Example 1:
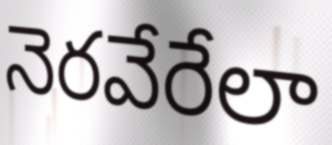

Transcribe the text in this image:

నెరవేరేలా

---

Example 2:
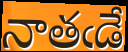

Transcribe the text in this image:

నాతఁడే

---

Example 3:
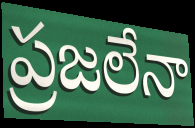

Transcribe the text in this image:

ప్రజలేనా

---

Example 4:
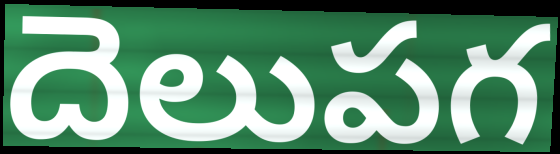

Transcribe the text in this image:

దెలుపగ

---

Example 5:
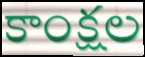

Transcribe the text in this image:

కాంక్షల